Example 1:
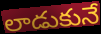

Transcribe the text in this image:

లాడుకునే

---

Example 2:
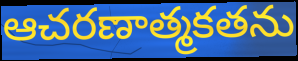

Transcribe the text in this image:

ఆచరణాత్మకతను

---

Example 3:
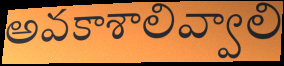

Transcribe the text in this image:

అవకాశాలివ్వాలి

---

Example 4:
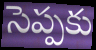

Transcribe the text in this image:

సెప్పకు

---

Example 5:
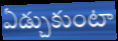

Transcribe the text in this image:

ఏడ్చుకుంటా